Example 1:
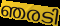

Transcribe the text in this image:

ഞരടി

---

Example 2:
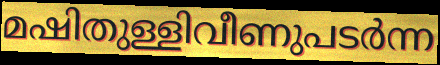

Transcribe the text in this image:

മഷിതുള്ളിവീണുപടർന്ന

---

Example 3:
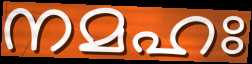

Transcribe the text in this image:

നമഹഃ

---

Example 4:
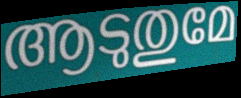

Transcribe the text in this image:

ആടുതുമേ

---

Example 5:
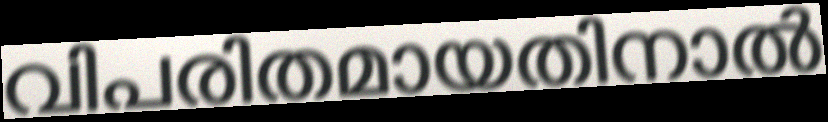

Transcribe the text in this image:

വിപരിതമായതിനാൽ